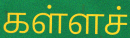
கள்ளச்